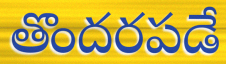
తొందరపడే